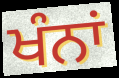
ਖੰਨਾਂ